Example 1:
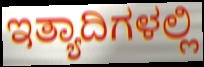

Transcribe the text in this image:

ಇತ್ಯಾದಿಗಳಲ್ಲಿ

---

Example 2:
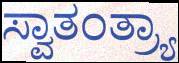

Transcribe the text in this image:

ಸ್ವಾತಂತ್ರ್ಯಾ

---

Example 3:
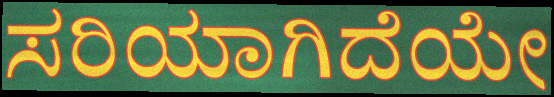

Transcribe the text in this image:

ಸರಿಯಾಗಿದೆಯೇ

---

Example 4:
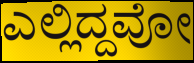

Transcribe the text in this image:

ಎಲ್ಲಿದ್ದವೋ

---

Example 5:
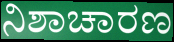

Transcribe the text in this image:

ನಿಶಾಚಾರಣ